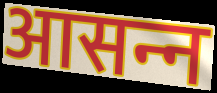
आसन्न